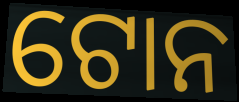
ଟୋନ